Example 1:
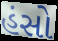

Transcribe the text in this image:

હંસો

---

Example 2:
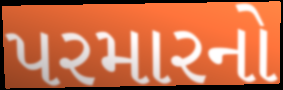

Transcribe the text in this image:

પરમારનો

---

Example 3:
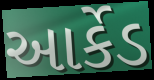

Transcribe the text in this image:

આર્કેડ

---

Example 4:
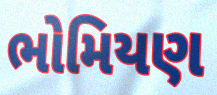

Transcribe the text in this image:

ભોમિયણ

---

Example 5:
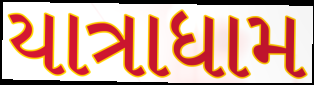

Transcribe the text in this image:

યાત્રાધામ